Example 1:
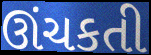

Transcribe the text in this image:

ઊંચકતી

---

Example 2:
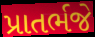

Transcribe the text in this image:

પ્રાતર્ભજે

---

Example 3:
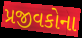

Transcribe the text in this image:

પ્રજીવકોના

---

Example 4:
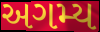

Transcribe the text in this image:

અગમ્ય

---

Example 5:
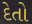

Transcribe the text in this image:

દેતો